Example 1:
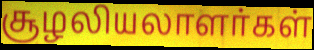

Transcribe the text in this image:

சூழலியலாளர்கள்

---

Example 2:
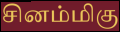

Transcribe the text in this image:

சினம்மிகு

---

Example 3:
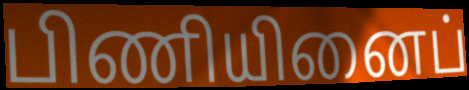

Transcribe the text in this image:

பிணியினைப்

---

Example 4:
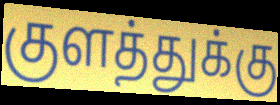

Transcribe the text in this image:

குளத்துக்கு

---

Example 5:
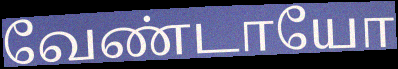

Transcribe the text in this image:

வேண்டாயோ